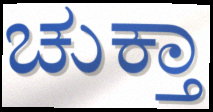
ಚುಕ್ತಾ